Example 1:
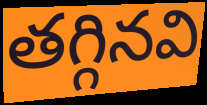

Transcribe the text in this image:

తగ్గినవి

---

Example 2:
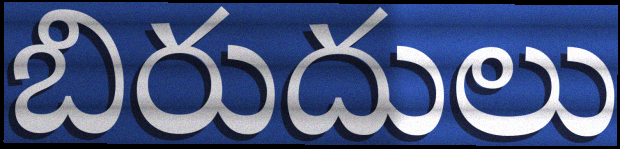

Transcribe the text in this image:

బిరుదులు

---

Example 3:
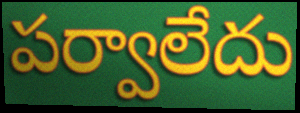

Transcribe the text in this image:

పర్వాలేదు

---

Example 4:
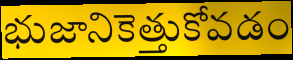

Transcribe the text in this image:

భుజానికెత్తుకోవడం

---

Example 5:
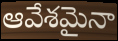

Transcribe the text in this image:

ఆవేశమైనా